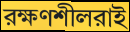
রক্ষণশীলরাই